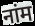
नांम